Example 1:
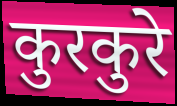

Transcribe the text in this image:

कुरकुरे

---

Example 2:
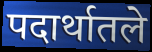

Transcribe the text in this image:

पदार्थातले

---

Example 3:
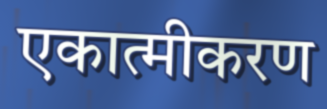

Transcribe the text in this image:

एकात्मीकरण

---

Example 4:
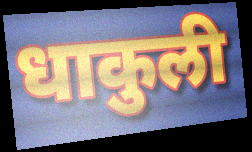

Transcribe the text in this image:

धाकुली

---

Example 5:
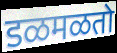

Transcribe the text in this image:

डळमळतो